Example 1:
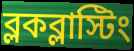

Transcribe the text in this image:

ব্লকব্লাস্টিং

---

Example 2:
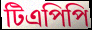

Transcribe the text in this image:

টিএপিপি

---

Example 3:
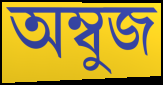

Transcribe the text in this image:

অম্বুজ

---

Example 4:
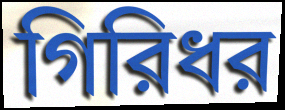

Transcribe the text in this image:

গিরিধর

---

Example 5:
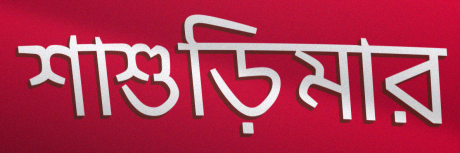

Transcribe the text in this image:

শাশুড়িমার